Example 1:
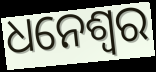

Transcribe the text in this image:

ଧନେଶ୍ବର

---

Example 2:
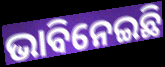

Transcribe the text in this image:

ଭାବିନେଇଛି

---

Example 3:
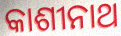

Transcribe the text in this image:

କାଶୀନାଥ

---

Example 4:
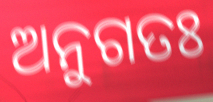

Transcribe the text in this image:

ଅନୁଗତଃ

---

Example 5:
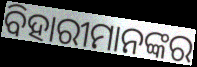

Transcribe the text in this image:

ବିହାରୀମାନଙ୍କର